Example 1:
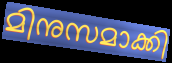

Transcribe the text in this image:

മിനുസമാക്കി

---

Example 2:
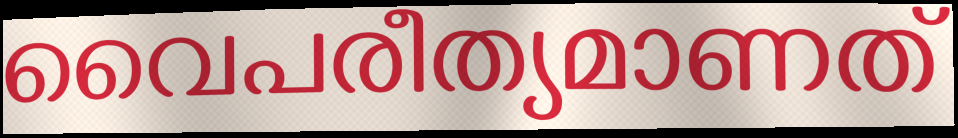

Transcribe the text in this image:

വൈപരീത്യമാണത്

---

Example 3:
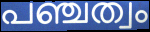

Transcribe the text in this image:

പഞ്ചത്വം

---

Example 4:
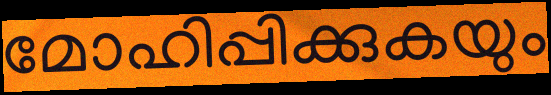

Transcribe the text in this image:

മോഹിപ്പിക്കുകയും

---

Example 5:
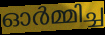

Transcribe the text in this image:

ഓർമ്മിച്ച